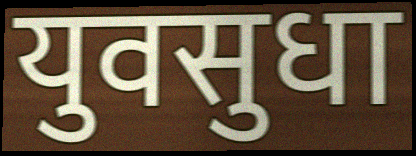
युवसुधा